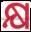
କ୍ଷ